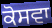
ਕੋਸਵਾ